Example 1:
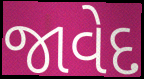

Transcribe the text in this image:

જાવેદ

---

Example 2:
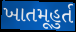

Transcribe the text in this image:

ખાતમૂહુર્ત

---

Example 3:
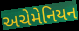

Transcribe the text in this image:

અચેમેનિયન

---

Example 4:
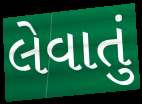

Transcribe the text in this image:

લેવાતું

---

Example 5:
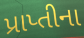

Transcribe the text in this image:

પ્રાપ્તીના